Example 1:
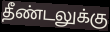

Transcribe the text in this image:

தீண்டலுக்கு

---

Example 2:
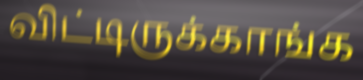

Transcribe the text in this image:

விட்டிருக்காங்க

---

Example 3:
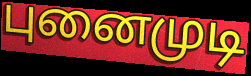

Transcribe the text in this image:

புனைமுடி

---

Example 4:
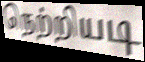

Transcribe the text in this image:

நெற்றியடி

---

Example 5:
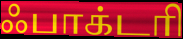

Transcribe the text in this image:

ஃபாக்டரி